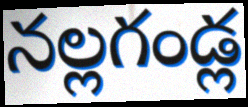
నల్లగండ్ల